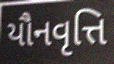
યૌનવૃત્તિ